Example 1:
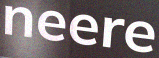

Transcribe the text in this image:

neere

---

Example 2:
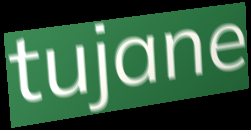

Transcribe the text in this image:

tujane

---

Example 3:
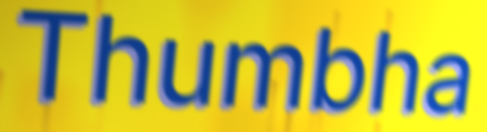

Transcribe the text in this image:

Thumbha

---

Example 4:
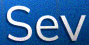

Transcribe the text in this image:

Sev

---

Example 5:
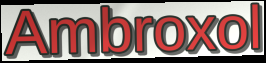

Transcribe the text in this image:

Ambroxol